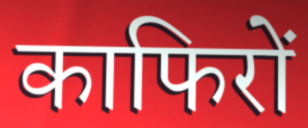
काफिरों